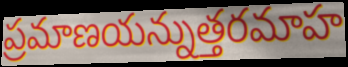
ప్రమాణయన్నుత్తరమాహ